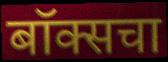
बॉक्सचा